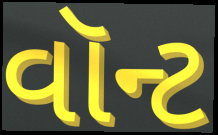
વૉન્ટ